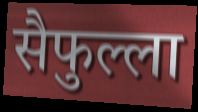
सैफुल्ला